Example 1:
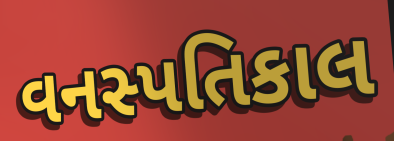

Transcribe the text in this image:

વનસ્પતિકાલ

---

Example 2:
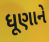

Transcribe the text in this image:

ધૂણાને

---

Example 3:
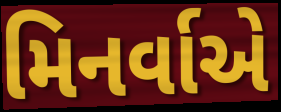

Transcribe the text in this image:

મિનર્વાએ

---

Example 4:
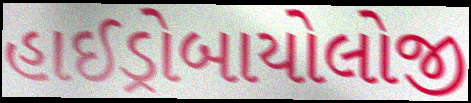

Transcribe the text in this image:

હાઈડ્રોબાયોલોજી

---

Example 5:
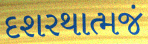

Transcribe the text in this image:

દશરથાત્મજં